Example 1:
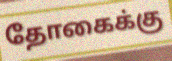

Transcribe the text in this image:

தோகைக்கு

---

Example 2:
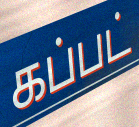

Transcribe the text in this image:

கப்பட்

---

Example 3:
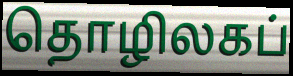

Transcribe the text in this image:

தொழிலகப்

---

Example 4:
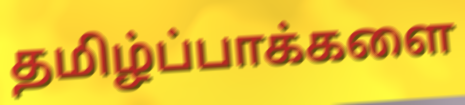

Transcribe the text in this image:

தமிழ்ப்பாக்களை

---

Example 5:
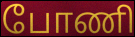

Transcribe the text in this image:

போணி